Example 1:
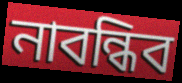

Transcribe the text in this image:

নাবন্ধিব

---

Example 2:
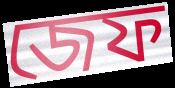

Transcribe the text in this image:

জেফ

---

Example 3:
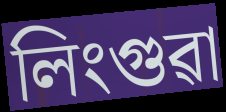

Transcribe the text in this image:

লিংগুৱা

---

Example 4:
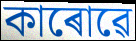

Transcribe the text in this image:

কাৰোৱে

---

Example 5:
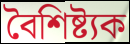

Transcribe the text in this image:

বৈশিষ্ট্যক